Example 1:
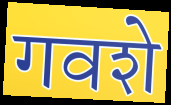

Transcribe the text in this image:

गवशे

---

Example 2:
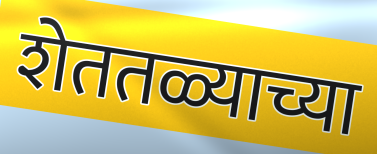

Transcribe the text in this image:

शेततळ्याच्या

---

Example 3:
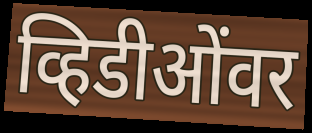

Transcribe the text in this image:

व्हिडीओंवर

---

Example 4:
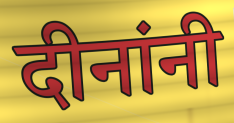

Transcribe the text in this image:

दीनांनी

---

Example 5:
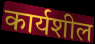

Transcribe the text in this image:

कार्यशील